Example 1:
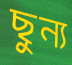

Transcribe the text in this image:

ছুন্য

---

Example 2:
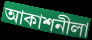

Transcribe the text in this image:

আকাশনীলা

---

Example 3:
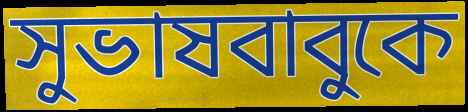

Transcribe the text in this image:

সুভাষবাবুকে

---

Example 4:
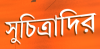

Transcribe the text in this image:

সুচিত্রাদির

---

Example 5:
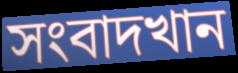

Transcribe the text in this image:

সংবাদখান